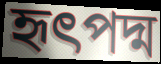
হৃৎপদ্ম